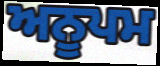
ਅਨੂਪਮ